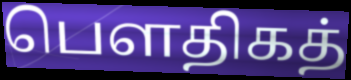
பௌதிகத்